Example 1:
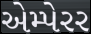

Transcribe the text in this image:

એમ્પેરર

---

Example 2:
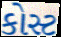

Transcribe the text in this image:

કોસ્ટ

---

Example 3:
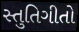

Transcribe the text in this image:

સ્તુતિગીતો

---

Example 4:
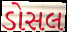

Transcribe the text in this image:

ડોસલ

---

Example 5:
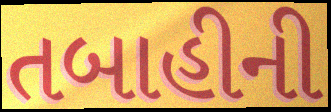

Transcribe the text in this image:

તબાહીની